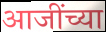
आजींच्या